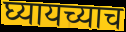
घ्यायच्याच